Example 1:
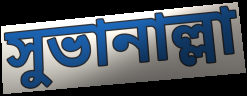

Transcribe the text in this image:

সুভানাল্লা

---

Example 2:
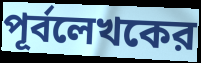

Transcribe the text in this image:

পূর্বলেখকের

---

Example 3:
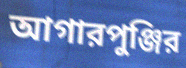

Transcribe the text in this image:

আগারপুঞ্জির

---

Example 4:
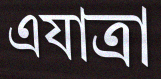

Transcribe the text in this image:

এযাত্রা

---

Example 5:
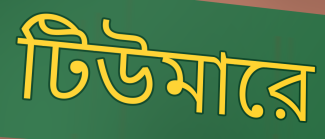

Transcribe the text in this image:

টিউমারে